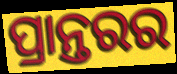
ପ୍ରାନ୍ତରର